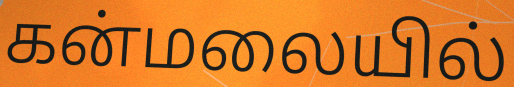
கன்மலையில்